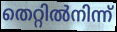
തെറ്റിൽനിന്ന്